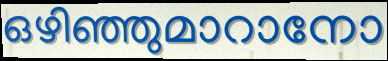
ഒഴിഞ്ഞുമാറാനോ